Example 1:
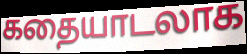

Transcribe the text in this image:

கதையாடலாக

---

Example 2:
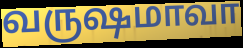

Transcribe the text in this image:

வருஷமாவா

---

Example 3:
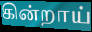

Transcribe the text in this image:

கின்றாய்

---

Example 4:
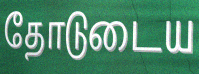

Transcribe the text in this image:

தோடுடைய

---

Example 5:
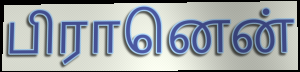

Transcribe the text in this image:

பிரானென்